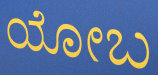
ಯೋಬ